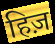
हिज़